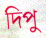
দিপু